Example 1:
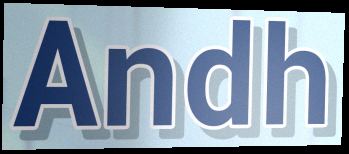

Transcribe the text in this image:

Andh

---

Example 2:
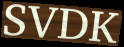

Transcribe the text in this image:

SVDK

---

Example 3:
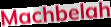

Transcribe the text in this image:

Machbelah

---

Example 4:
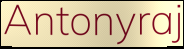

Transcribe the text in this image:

Antonyraj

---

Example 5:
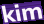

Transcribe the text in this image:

kim